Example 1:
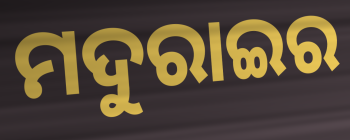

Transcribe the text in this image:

ମଦୁରାଇର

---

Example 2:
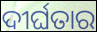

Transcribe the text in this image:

ଦୀର୍ଘତାର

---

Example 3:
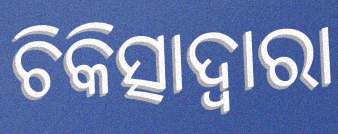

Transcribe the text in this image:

ଚିକିତ୍ସାଦ୍ଵାରା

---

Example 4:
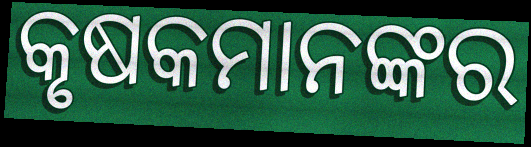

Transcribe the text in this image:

କୃଷକମାନଙ୍କର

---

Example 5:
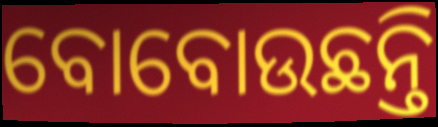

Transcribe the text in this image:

ବୋବୋଉଛନ୍ତି